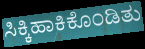
ಸಿಕ್ಕಿಹಾಕಿಕೊಂಡಿತು